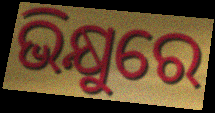
ଭିକ୍ଷୁରେ